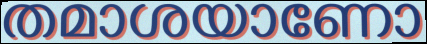
തമാശയാണോ